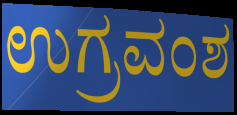
ಉಗ್ರವಂಶ